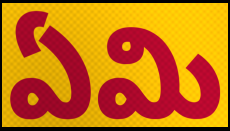
ఏమి